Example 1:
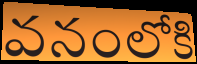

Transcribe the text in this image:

వనంలోకి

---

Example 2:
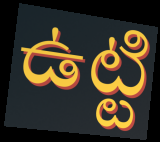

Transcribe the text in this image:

ఉట్టి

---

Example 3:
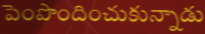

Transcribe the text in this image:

పెంపొందించుకున్నాడు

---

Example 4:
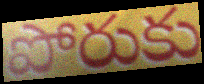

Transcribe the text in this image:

పోరుకు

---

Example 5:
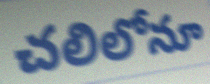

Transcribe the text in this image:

చలిలోనూ